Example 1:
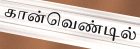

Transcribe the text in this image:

கான்வெண்டில்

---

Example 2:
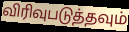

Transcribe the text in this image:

விரிவுபடுத்தவும்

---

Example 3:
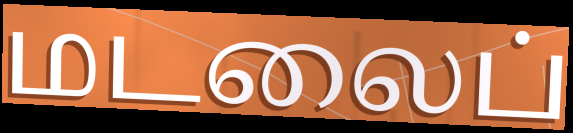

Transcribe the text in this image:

மடலைப்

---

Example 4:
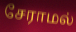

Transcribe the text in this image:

சேராமல்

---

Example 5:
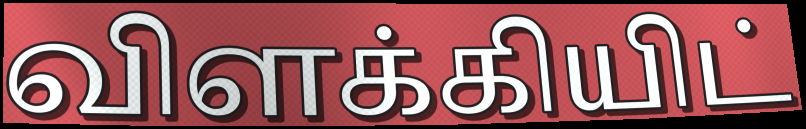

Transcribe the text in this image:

விளக்கியிட்